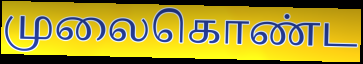
முலைகொண்ட